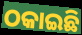
ଠକାଇଛି